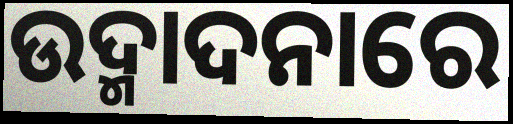
ଉଦ୍ମାଦନାରେ